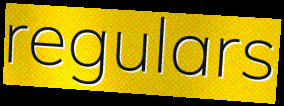
regulars